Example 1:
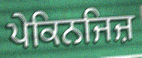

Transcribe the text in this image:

ਪੇਕਿਨਜਿਜ਼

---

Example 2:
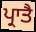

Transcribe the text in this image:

ਪ੍ਰਾਤੈ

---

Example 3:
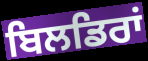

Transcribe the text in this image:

ਬਿਲਡਿਰਾਂ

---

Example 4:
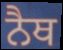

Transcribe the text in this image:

ਨੈਥ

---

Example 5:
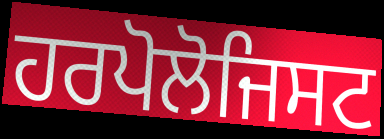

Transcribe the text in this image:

ਹਰਪੋਲੋਜਿਸਟ